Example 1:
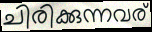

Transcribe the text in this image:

ചിരിക്കുന്നവര്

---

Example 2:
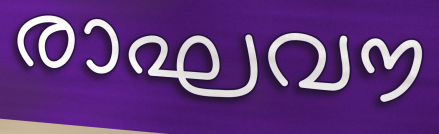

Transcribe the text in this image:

രാഘവൗ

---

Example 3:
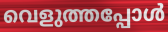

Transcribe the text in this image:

വെളുത്തപ്പോൾ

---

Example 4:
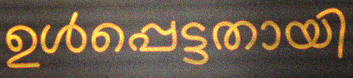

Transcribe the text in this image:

ഉൾപ്പെട്ടതായി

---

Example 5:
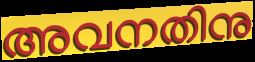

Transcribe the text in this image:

അവനതിനു